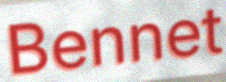
Bennet